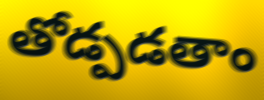
తోడ్పడతాం